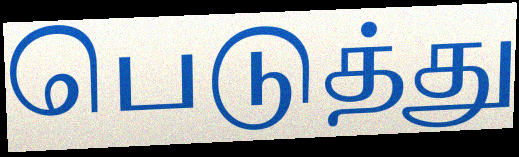
பெடுத்து